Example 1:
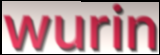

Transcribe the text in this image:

wurin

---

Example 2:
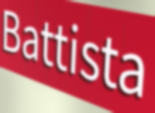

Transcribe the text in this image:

Battista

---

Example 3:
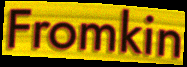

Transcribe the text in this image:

Fromkin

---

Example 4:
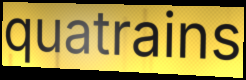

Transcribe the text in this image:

quatrains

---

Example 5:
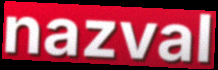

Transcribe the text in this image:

nazval